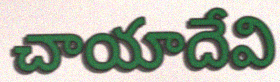
చాయాదేవి